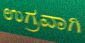
ಉಗ್ರವಾಗಿ